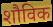
शौविक